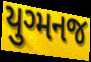
યુગ્મનજ